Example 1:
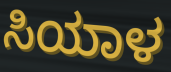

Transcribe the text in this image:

ಸಿಯಾಳ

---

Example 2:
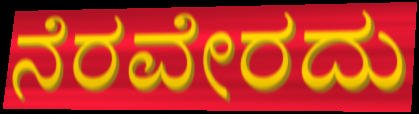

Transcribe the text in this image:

ನೆರವೇರದು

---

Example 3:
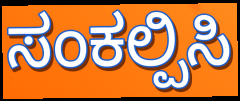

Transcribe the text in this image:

ಸಂಕಲ್ಪಿಸಿ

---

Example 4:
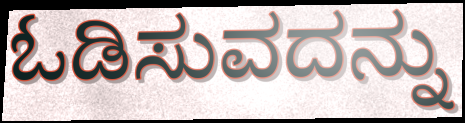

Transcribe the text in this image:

ಓಡಿಸುವದನ್ನು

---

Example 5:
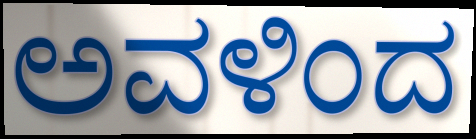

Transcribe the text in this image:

ಅವಳಿಂದ